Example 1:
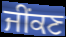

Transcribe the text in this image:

ਜੀਂਕਣ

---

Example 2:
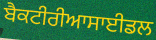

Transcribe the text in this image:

ਬੈਕਟੀਰੀਆਸਾਈਡਲ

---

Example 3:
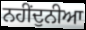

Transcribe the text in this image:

ਨਹੀਂਦੁਨੀਆ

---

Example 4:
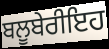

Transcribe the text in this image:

ਬਲੂਬੇਰੀਇਹ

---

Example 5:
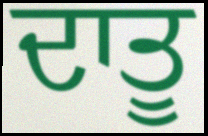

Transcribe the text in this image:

ਦਾਤੂ